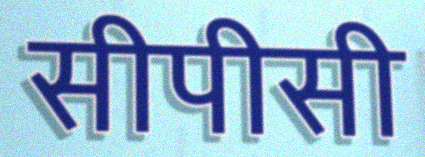
सीपीसी